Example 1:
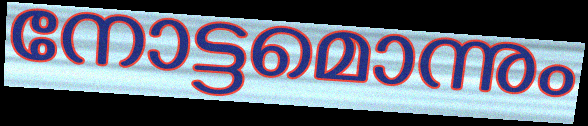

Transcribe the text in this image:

നോട്ടമൊന്നും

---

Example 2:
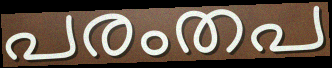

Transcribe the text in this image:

പരംതപ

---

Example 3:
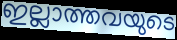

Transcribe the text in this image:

ഇല്ലാത്തവയുടെ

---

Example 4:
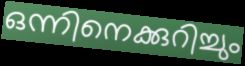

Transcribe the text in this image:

ഒന്നിനെക്കുറിച്ചും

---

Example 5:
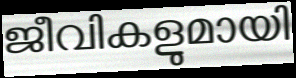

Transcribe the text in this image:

ജീവികളുമായി